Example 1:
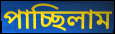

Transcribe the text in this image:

পাচ্ছিলাম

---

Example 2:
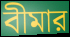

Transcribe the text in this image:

বীমার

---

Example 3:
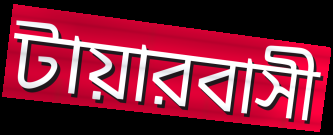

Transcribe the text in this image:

টায়ারবাসী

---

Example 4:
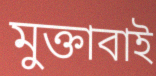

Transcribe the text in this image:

মুক্তাবাই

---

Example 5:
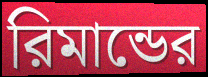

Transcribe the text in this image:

রিমান্ডের